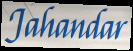
Jahandar